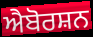
ਐਬੋਰਸ਼ਨ